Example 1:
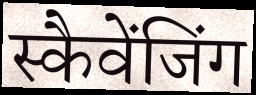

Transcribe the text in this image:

स्कैवेंजिंग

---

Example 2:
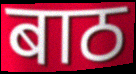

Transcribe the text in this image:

बाठ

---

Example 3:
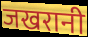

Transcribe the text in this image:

जखरानी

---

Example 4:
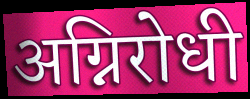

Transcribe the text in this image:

अग्निरोधी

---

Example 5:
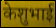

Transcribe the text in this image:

केशुभाई